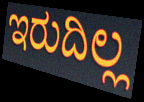
ಇರುದಿಲ್ಲ